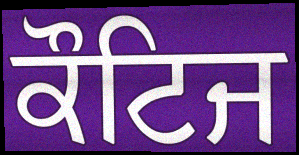
ਕੌਟਿਜ